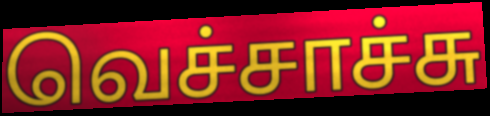
வெச்சாச்சு